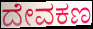
ದೇವಕಣ